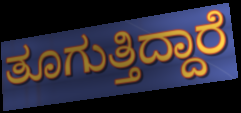
ತೂಗುತ್ತಿದ್ದಾರೆ